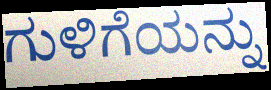
ಗುಳಿಗೆಯನ್ನು